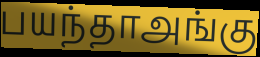
பயந்தாஅங்கு